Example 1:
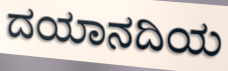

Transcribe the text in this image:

ದಯಾನದಿಯ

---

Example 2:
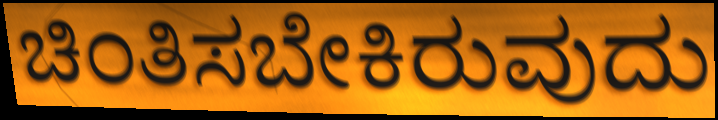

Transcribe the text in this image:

ಚಿಂತಿಸಬೇಕಿರುವುದು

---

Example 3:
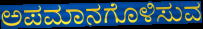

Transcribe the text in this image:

ಅಪಮಾನಗೊಳಿಸುವ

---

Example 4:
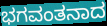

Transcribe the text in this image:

ಭಗವಂತನಾದ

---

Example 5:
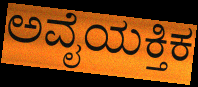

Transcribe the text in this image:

ಅವೈಯಕ್ತಿಕ